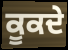
ਕੂਕਦੇ